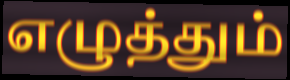
எழுத்தும்